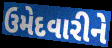
ઉમેદવારીને